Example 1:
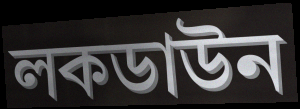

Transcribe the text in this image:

লকডাউন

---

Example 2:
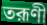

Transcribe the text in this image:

তরূণী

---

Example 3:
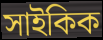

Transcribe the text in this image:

সাইকিক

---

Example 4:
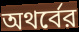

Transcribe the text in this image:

অথর্বের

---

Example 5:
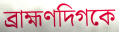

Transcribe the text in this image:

ব্রাহ্মণদিগকে